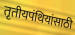
तृतीयपंथियांसाठी